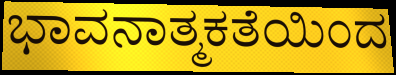
ಭಾವನಾತ್ಮಕತೆಯಿಂದ